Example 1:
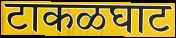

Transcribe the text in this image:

टाकळघाट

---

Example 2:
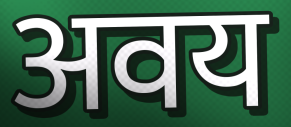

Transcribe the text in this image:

अवय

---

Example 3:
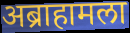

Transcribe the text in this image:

अब्राहामला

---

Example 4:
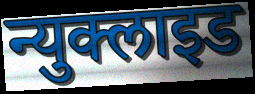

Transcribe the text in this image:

न्युक्लाइड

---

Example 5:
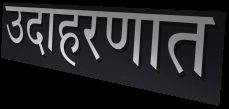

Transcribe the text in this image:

उदाहरणात